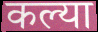
कल्या